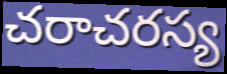
చరాచరస్య